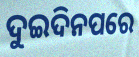
ଦୁଇଦିନପରେ